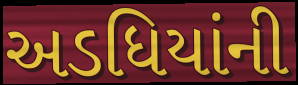
અડધિયાંની